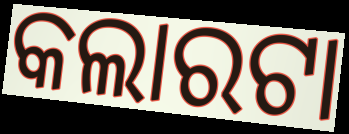
କଲାରଟା